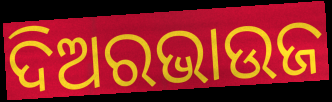
ଦିଅରଭାଉଜ